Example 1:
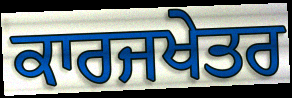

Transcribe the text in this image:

ਕਾਰਜਖੇਤਰ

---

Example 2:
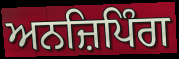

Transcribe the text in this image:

ਅਨਜ਼ਿਪਿੰਗ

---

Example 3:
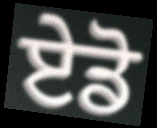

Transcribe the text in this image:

ਏਡੋ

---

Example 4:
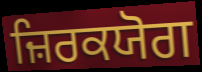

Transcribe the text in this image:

ਜ਼ਿਰਕਯੋਗ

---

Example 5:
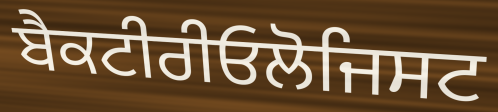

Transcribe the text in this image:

ਬੈਕਟੀਰੀਓਲੋਜਿਸਟ